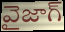
వైజాగ్